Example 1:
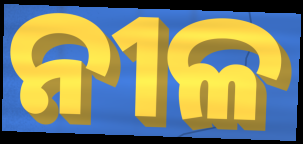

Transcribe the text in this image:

ନୀଳ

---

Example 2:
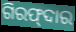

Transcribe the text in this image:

ଗିରଫ୍‍ଦାର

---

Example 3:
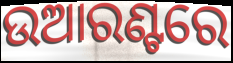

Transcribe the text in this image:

ଉଆରଣ୍ଟରେ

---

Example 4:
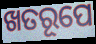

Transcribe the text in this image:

ଖତରୂପେ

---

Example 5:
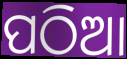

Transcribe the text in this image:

ପଠିଆ